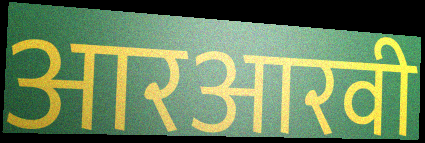
आरआरवी